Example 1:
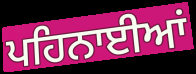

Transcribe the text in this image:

ਪਹਿਨਾਈਆਂ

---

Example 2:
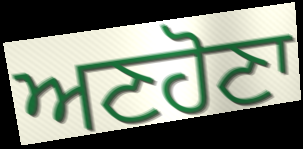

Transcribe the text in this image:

ਅਣਹੋਣਾ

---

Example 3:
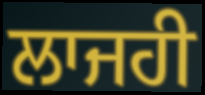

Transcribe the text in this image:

ਲਾਜਹੀ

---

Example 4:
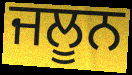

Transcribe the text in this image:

ਜਲੂਨ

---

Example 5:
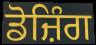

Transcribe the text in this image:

ਡੋਜ਼ਿੰਗ